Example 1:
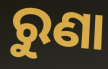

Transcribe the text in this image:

ରୁଣା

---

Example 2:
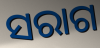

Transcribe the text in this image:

ସରାଗ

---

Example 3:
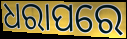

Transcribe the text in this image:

ଧରାପରେ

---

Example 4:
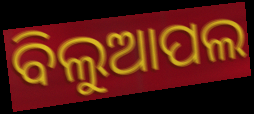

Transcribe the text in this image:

ବିଲୁଆପଲ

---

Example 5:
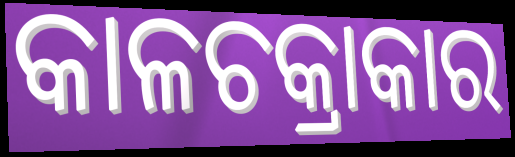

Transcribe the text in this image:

କାଳଚକ୍ରାକାର